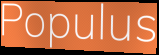
Populus